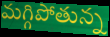
మగ్గిపోతున్న